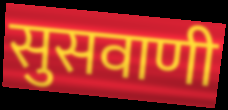
सुसवाणी